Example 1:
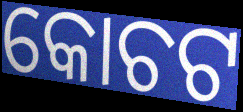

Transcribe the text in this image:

କୋଚଟ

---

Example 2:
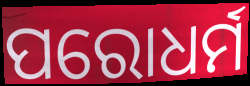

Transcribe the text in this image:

ପରୋଧର୍ମ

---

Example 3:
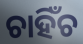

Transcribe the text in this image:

ଚାହିଁଚ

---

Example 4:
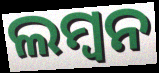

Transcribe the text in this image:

ଲମ୍ବନ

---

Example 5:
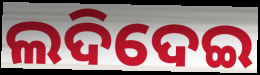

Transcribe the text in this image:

ଲଦିଦେଇ